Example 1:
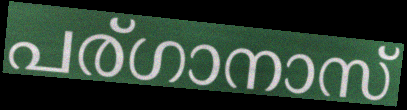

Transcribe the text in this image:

പര്ഗാനാസ്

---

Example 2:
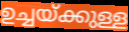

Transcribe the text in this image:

ഉച്ചയ്ക്കുള്ള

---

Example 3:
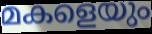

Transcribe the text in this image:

മകളെയും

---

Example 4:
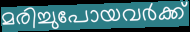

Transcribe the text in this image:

മരിച്ചുപോയവർക്ക്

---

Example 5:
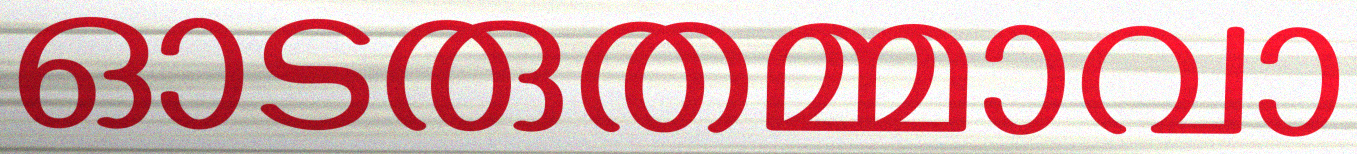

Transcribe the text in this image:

ഓടരുതമ്മാവാ